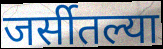
जर्सीतल्या